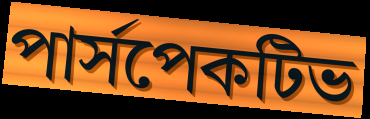
পার্সপেকটিভ